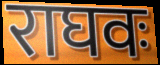
राघवः